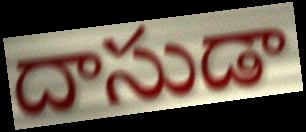
దాసుడా